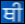
ਥੀ